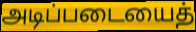
அடிப்படையைத்